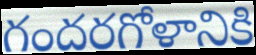
గందరగోళానికి